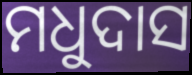
ମଧୁଦାସ